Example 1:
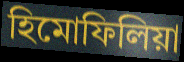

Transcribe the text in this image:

হিমোফিলিয়া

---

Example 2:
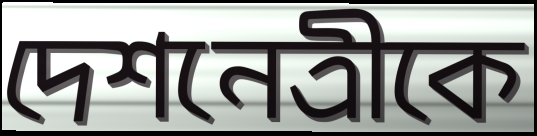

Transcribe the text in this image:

দেশনেত্রীকে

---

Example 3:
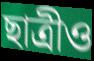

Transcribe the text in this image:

ছাত্রীও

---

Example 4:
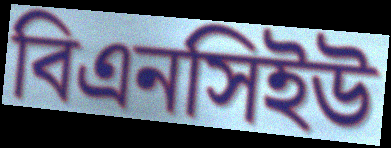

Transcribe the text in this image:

বিএনসিইউ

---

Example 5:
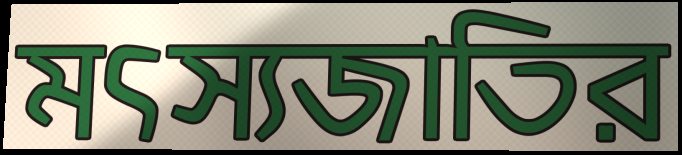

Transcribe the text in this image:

মৎস্যজাতির